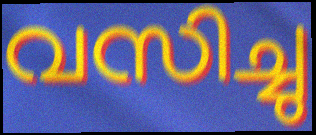
വസിച്ചു